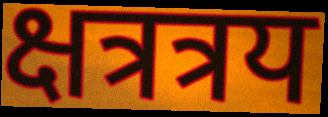
क्षत्रत्रय